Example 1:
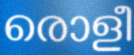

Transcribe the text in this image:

രൊളീ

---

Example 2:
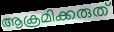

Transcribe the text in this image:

ആക്രമിക്കരുത്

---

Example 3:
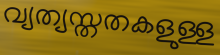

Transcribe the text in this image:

വ്യത്യസ്തതകളുള്ള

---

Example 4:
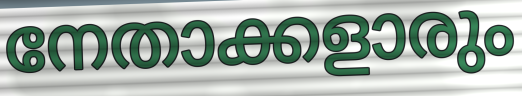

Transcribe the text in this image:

നേതാക്കളാരും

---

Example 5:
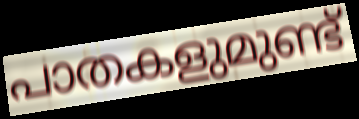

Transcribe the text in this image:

പാതകളുമുണ്ട്